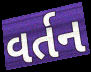
વર્તન